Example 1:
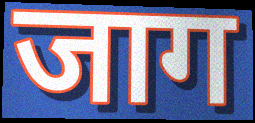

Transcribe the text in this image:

जाग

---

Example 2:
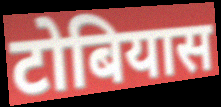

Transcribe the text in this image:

टोबियास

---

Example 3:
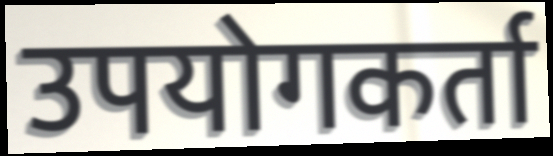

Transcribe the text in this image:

उपयोगकर्ता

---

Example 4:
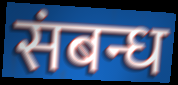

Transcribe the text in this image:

संबन्ध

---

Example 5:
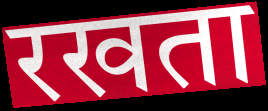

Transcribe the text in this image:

रखता